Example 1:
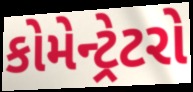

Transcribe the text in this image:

કોમેન્ટ્રેટરો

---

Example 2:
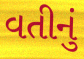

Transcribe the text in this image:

વતીનું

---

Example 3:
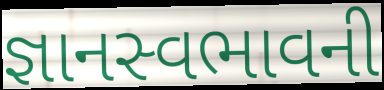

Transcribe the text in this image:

જ્ઞાનસ્વભાવની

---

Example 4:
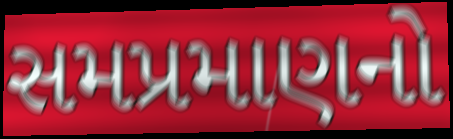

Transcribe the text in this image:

સમપ્રમાણનો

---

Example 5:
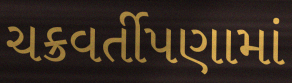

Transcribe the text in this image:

ચક્રવર્તીપણામાં